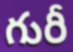
గురీ